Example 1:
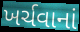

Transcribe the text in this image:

ખર્ચવાનાં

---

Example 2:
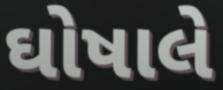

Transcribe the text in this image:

ઘોષાલે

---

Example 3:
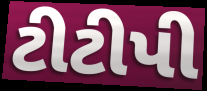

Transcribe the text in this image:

ટીટીપી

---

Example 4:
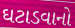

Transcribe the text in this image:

ઘટાડવાનો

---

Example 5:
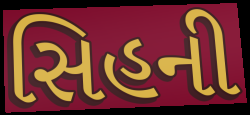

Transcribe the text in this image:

સિહની